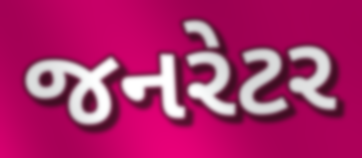
જનરેટર